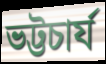
ভট্টচাৰ্য